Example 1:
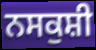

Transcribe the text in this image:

ਨਸਕੁਸ਼ੀ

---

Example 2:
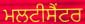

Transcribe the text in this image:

ਮਲਟੀਸੈਂਟਰ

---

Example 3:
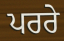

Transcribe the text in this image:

ਪਰਰੇ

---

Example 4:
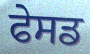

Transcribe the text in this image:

ਫੇਸਡ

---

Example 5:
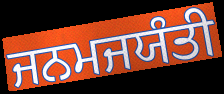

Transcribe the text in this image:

ਜਨਮਜਯੰਤੀ